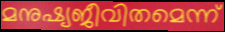
മനുഷ്യജീവിതമെന്ന്